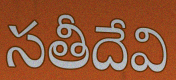
సతీదేవి